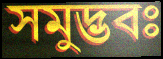
সমুদ্ভবঃ